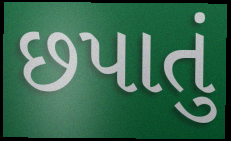
છપાતું